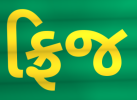
ફ્રિજ